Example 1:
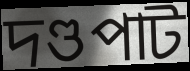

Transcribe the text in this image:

দণ্ডপাট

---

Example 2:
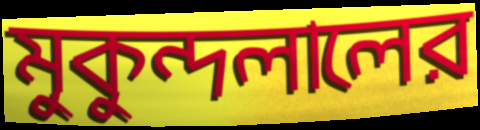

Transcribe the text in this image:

মুকুন্দলালের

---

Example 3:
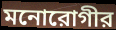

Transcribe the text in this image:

মনোরোগীর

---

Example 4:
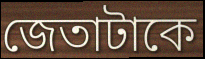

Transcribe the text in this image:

জেতাটাকে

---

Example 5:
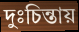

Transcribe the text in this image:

দুঃচিন্তায়